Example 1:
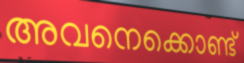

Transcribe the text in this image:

അവനെക്കൊണ്ട്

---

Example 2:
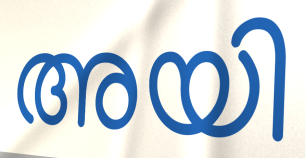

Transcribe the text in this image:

അയി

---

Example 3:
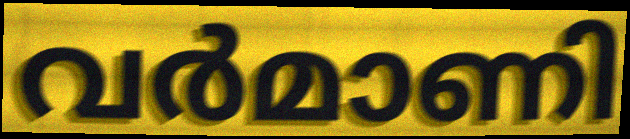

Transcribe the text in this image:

വർമാണി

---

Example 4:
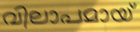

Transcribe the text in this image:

വിലാപമായ്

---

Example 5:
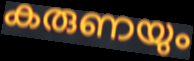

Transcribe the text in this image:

കരുണയും